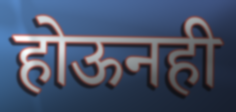
होऊनही